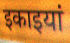
इकाइयां